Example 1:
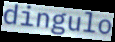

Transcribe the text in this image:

dingulo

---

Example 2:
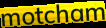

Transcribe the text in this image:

motcham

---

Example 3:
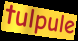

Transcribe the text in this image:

tulpule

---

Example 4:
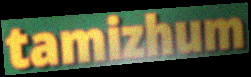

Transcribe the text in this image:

tamizhum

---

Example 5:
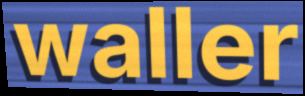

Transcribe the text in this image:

waller